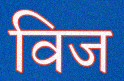
विज